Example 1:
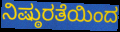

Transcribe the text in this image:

ನಿಷ್ಠುರತೆಯಿಂದ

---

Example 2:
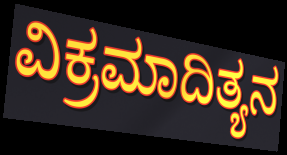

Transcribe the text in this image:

ವಿಕ್ರಮಾದಿತ್ಯನ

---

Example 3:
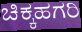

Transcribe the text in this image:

ಚಿಕ್ಕಹಗರಿ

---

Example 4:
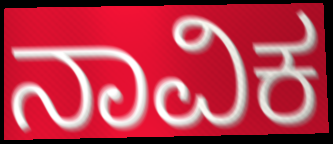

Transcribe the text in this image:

ನಾವಿಕ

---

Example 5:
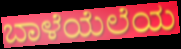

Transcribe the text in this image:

ಬಾಳೆಯೆಲೆಯ